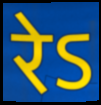
रेऽ